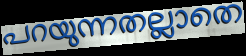
പറയുന്നതല്ലാതെ